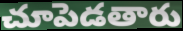
చూపెడతారు